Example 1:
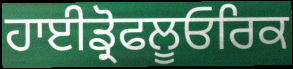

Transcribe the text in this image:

ਹਾਈਡ੍ਰੋਫਲੂਓਰਿਕ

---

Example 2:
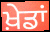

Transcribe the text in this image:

ਖ਼ੇਡਾਂ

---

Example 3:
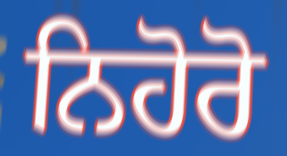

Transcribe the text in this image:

ਨਿਹੋਰੋ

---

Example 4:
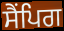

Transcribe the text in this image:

ਸੈਂਪਿਗ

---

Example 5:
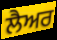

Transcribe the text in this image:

ਲੈਅਰ